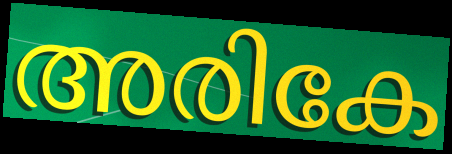
അരികേ